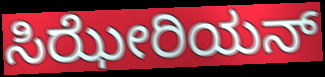
ಸಿಝೇರಿಯನ್